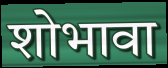
शोभावा